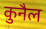
कुनैल